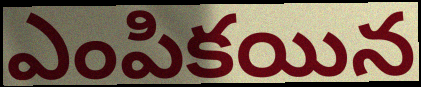
ఎంపికయిన